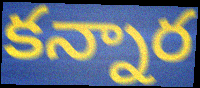
కన్నార